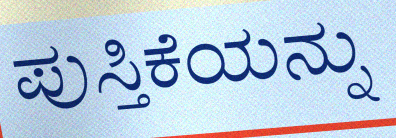
ಪುಸ್ತಿಕೆಯನ್ನು